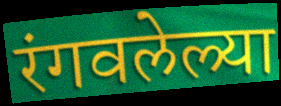
रंगवलेल्या